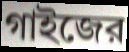
গাইজের